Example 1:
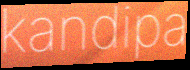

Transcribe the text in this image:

kandipa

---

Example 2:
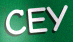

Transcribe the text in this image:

CEY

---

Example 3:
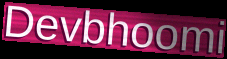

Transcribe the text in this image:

Devbhoomi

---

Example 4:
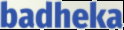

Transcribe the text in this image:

badheka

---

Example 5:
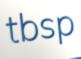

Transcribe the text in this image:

tbsp